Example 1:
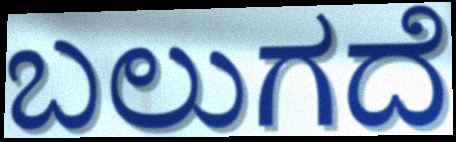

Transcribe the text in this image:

ಬಲುಗದೆ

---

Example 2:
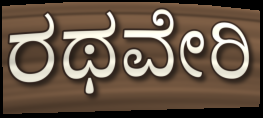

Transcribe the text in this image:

ರಥವೇರಿ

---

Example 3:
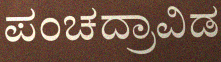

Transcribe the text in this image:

ಪಂಚದ್ರಾವಿಡ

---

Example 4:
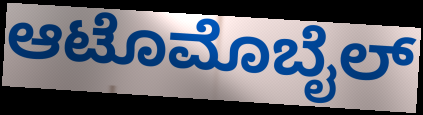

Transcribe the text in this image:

ಆಟೊಮೊಬೈಲ್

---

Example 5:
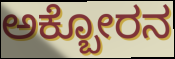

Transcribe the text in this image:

ಅಕ್ಬೋರನ